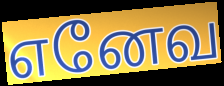
எனேவ